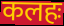
कलहः